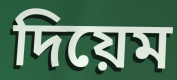
দিয়েম